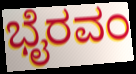
ಭೈರವಂ